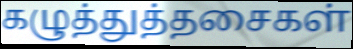
கழுத்துத்தசைகள்